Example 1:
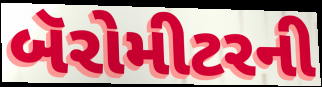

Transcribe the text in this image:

બૅરોમીટરની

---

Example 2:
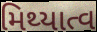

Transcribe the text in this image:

મિથ્યાત્વ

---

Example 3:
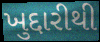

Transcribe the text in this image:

ખુદ્દારીથી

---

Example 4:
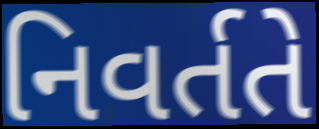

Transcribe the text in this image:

નિવર્તતે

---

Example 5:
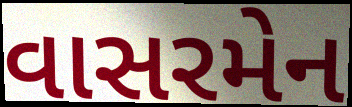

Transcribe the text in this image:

વાસરમેન